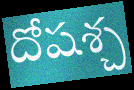
దోషశ్చ